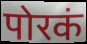
पोरकं